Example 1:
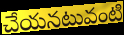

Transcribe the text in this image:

చేయనటువంటి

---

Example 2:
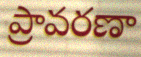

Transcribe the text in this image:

ప్రావరణా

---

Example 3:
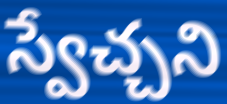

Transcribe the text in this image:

స్వేచ్చని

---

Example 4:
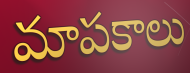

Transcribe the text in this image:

మాపకాలు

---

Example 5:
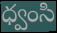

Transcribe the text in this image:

ధ్వంసి